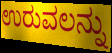
ಉರುವಲನ್ನು